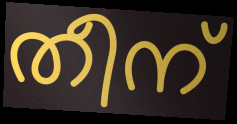
തീന്